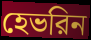
হেভরিন